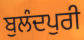
ਬੁਲੰਦਪੁਰੀ